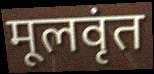
मूलवृंत